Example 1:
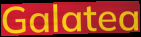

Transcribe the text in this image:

Galatea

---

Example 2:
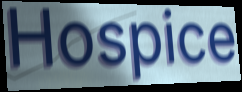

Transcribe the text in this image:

Hospice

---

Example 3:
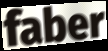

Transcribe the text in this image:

faber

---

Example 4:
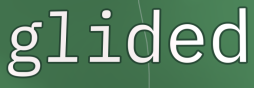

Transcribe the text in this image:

glided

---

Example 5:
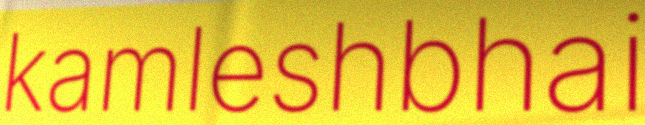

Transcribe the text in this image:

kamleshbhai